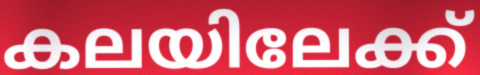
കലയിലേക്ക്